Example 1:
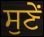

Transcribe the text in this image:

ਸੁਣੇਂ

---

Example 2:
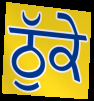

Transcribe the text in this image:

ਠੁੱਕੇ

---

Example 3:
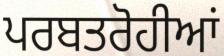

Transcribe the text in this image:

ਪਰਬਤਰੋਹੀਆਂ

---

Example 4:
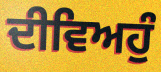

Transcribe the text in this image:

ਦੀਵਿਅਹੁੰ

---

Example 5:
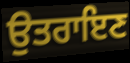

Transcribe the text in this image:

ਉਤਰਾਇਣ